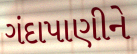
ગંદાપાણીને